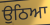
ਉਠਿਆ